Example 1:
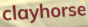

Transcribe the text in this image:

clayhorse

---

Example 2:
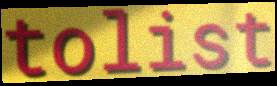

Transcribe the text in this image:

tolist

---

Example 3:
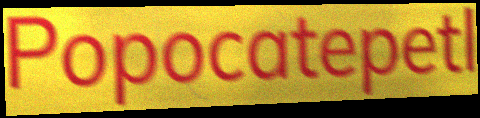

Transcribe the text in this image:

Popocatepetl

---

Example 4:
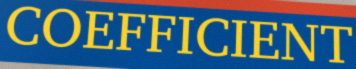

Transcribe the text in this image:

COEFFICIENT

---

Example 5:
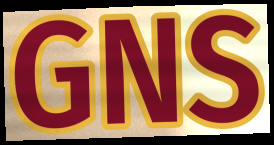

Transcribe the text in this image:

GNS